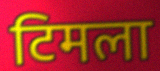
टिमला